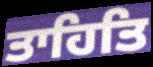
ਤਾਹਿਤਿ